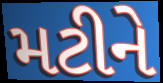
મટીને